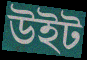
উইট